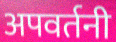
अपवर्तनी